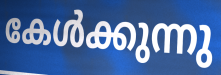
കേൾക്കുന്നു